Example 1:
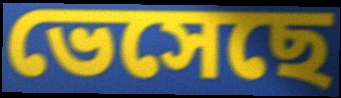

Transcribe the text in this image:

ভেসেছে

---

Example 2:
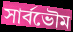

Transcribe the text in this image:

সার্বভৌম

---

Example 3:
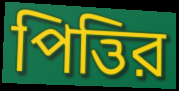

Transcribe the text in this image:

পিত্তির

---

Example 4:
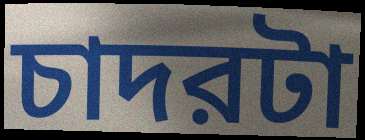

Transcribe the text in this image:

চাদরটা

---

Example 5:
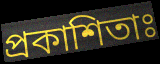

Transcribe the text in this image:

প্রকাশিতাঃ